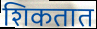
शिकतात